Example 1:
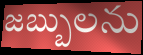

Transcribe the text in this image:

జబ్బులను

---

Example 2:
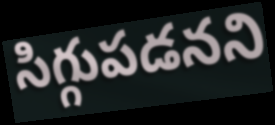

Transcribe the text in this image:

సిగ్గుపడనని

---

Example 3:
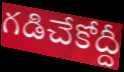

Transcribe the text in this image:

గడిచేకోద్దీ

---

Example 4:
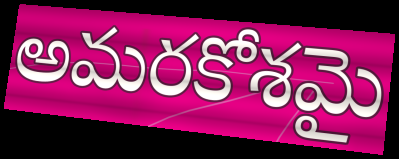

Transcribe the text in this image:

అమరకోశమై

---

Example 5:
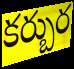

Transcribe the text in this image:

కర్బుర